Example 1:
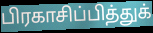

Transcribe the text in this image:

பிரகாசிப்பித்துக்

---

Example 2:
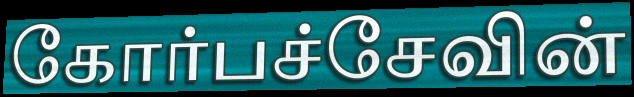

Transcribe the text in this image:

கோர்பச்சேவின்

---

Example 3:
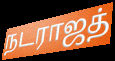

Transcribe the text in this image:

நடராஜத்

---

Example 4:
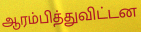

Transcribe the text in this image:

ஆரம்பித்துவிட்டன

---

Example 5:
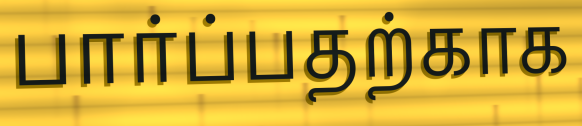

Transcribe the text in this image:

பார்ப்பதற்காக